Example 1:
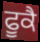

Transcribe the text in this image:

ਫੂਕੈ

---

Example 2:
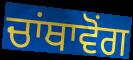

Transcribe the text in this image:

ਚਾਂਥਾਵੋਂਗ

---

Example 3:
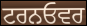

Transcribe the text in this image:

ਟਰਨਓਵਰ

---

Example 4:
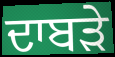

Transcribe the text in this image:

ਦਾਬੜੇ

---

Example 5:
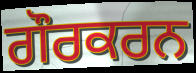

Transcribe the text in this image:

ਗੌਰਕਰਨ